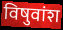
विषुवांश